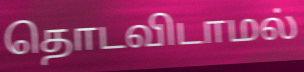
தொடவிடாமல்